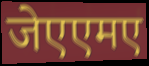
जेएएमए